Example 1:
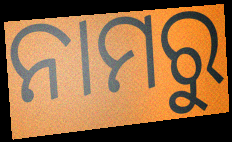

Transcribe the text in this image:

ନାମରୁ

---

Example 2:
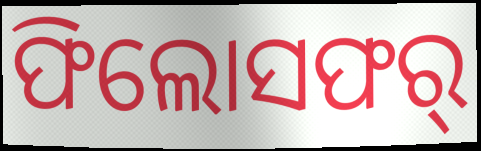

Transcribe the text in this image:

ଫିଲୋସଫର୍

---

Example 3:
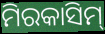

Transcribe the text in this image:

ମିରକାସିମ୍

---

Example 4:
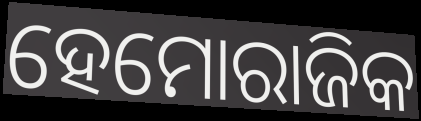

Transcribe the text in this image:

ହେମୋରାଜିକ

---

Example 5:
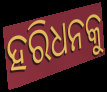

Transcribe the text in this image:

ହରିଧନକୁ